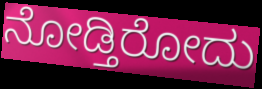
ನೋಡ್ತಿರೋದು